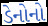
ડેનોનો